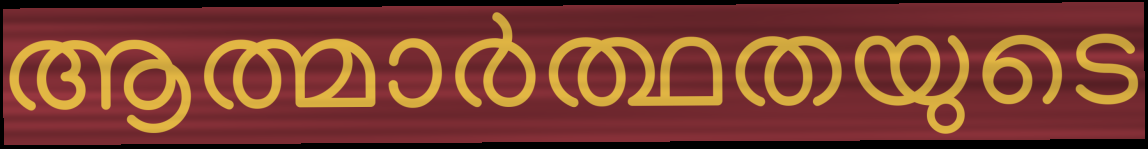
ആത്മാർത്ഥതയുടെ